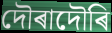
দৌৰাদৌৰি